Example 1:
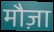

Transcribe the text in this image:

मौज़ा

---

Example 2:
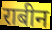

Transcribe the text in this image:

राबीन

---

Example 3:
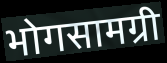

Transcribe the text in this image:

भोगसामग्री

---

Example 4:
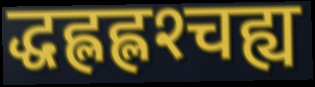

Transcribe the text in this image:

द्धह्लह्लश्चह्य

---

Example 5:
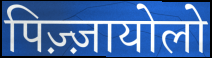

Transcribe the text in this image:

पिज़्ज़ायोलो